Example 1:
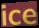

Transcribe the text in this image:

ice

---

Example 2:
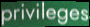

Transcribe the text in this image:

privileges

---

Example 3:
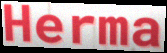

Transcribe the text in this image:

Herma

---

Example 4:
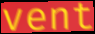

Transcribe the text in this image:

vent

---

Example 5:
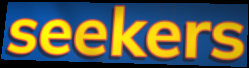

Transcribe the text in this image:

seekers